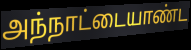
அந்நாட்டையாண்ட